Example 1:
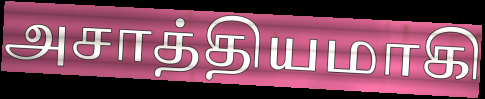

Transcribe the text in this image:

அசாத்தியமாகி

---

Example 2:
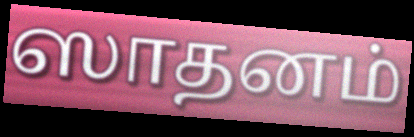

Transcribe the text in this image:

ஸாதனம்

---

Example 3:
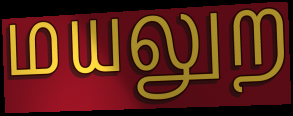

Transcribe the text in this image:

மயலுற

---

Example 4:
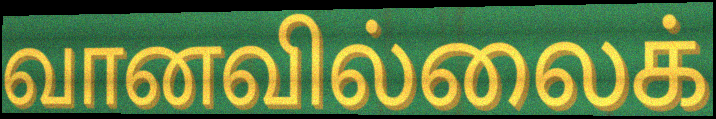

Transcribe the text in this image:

வானவில்லைக்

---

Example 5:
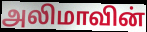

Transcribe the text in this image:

அலிமாவின்